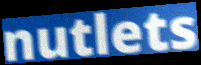
nutlets